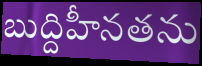
బుద్దిహీనతను